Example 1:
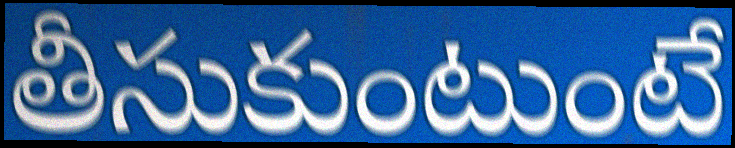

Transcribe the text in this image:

తీసుకుంటుంటే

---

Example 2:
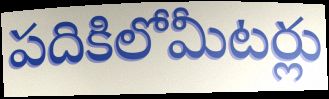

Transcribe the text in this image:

పదికిలోమీటర్లు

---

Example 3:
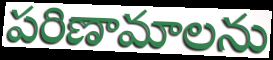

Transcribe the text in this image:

పరిణామాలను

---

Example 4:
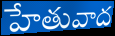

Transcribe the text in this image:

హేతువాద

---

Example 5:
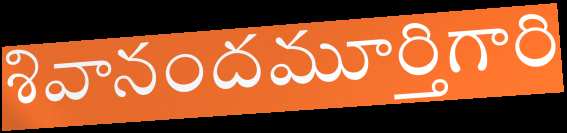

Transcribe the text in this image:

శివానందమూర్తిగారి